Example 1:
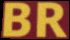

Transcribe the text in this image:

BR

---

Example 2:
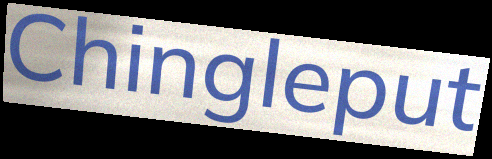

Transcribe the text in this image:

Chingleput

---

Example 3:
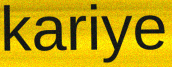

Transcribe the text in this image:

kariye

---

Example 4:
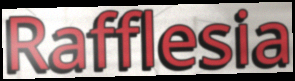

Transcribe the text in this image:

Rafflesia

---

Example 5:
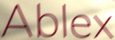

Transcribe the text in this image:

Ablex